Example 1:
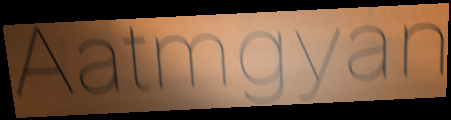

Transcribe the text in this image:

Aatmgyan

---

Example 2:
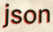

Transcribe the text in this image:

json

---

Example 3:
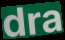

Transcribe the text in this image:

dra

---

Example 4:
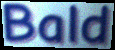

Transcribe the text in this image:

Bald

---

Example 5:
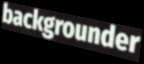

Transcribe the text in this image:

backgrounder